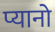
प्यानो